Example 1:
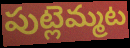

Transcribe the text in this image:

పుట్లెమ్మట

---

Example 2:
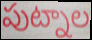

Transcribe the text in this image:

పుట్నాల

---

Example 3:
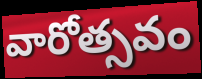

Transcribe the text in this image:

వారోత్సవం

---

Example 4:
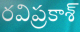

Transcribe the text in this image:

రవిప్రకాశ్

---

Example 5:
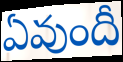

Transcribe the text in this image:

ఏవుందీ